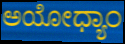
ಅಯೋಧ್ಯಾಂ